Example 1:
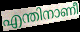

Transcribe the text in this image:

എന്തിനാണീ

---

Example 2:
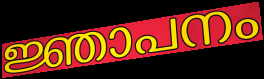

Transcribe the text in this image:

ജ്ഞാപനം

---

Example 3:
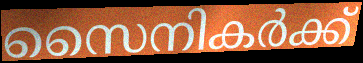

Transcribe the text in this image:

സൈനികർക്ക്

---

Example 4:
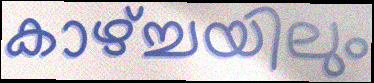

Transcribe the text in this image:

കാഴ്ച്ചയിലും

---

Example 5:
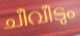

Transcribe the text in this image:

ചീവീടും